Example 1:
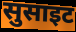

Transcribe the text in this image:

सुसाइट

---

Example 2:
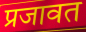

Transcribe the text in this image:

प्रजावत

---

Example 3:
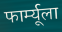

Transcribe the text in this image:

फार्म्यूला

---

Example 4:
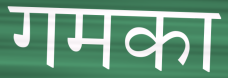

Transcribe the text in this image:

गमका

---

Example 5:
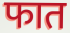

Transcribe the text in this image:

फात